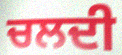
ਚਲਦੀ